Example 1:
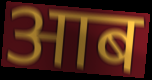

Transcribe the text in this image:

आब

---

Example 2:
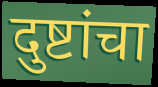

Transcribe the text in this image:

दुष्टांचा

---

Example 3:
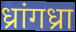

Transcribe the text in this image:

ध्रांगध्रा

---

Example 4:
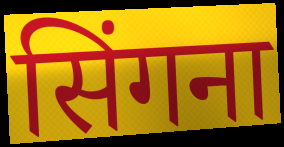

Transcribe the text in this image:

सिंगना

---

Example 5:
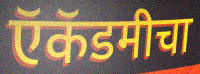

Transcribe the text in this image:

ऍकॅडमीचा